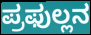
ಪ್ರಫುಲ್ಲನ